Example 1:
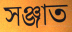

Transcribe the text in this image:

সঞ্জাত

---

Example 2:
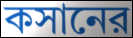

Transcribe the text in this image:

কসানের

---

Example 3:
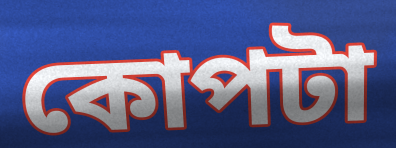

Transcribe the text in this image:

কোপটা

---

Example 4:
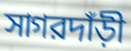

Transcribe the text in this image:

সাগরদাঁড়ী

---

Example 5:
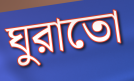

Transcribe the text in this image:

ঘুরাতো